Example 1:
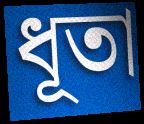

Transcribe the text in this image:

ধূতা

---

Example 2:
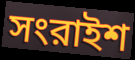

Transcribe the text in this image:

সংরাইশ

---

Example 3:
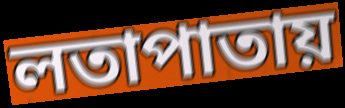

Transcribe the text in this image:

লতাপাতায়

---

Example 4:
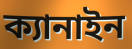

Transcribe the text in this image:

ক্যানাইন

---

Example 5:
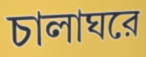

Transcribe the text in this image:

চালাঘরে